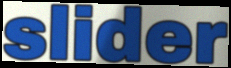
slider